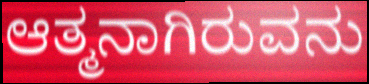
ಆತ್ಮನಾಗಿರುವನು